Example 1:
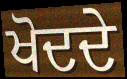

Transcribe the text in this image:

ਖੋਦਦੇ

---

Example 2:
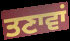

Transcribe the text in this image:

ਤਣਾਵਾਂ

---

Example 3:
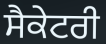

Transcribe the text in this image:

ਸੈਕੇਟਰੀ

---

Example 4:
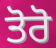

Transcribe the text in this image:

ਤੋਰੋ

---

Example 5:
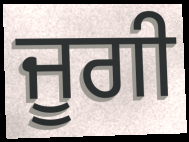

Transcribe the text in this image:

ਜੂਗੀ